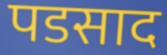
पडसाद